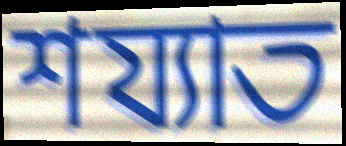
শয্যাত